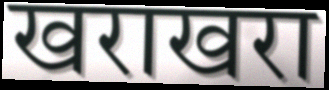
खराखरा